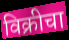
विक्रीचा